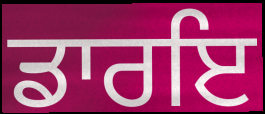
ਡਾਰਇ